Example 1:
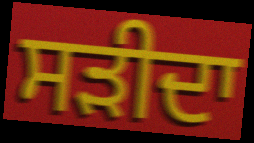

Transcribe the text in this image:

ਸੜੀਦਾ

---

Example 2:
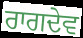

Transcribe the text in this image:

ਰਾਗਦੇਵ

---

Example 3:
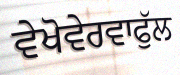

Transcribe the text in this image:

ਵੇਖੋਵੇਰਵਾਫੁੱਲ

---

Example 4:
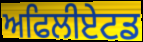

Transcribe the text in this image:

ਅਫਿਲੀਏਟਡ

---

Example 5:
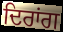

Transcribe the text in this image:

ਦਿਰਾਂਗ